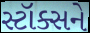
સ્ટૉક્સને